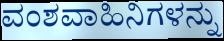
ವಂಶವಾಹಿನಿಗಳನ್ನು